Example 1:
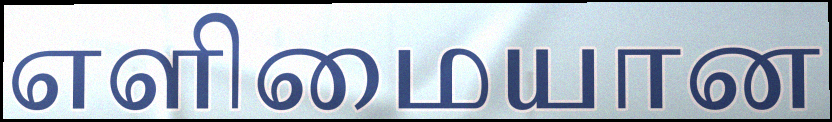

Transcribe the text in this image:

எளிமையான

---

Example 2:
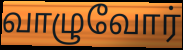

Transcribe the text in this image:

வாழுவோர்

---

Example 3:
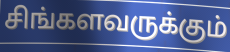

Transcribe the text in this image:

சிங்களவருக்கும்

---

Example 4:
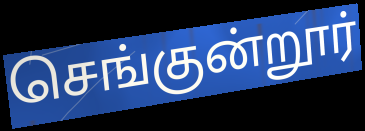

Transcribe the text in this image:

செங்குன்றூர்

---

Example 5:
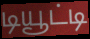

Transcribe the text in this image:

டியூட்டி